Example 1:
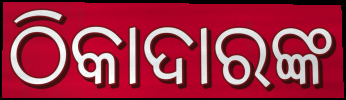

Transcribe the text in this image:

ଠିକାଦାରଙ୍କ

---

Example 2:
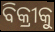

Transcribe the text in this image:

ବିକ୍ରୀକୁ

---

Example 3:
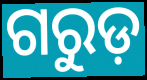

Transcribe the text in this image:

ଗରୁଡ଼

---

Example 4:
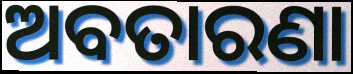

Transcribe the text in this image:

ଅବତାରଣା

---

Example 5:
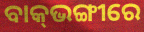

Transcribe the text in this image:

ବାକ୍‍ଭଙ୍ଗୀରେ